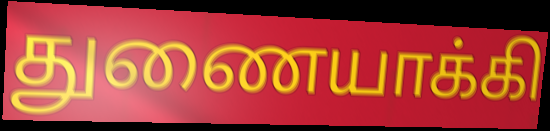
துணையாக்கி